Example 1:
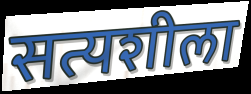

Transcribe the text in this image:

सत्यशीला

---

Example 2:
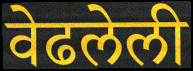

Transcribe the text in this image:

वेढलेली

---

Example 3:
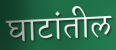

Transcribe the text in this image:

घाटांतील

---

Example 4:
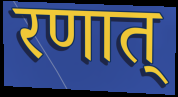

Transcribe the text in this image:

रणात्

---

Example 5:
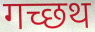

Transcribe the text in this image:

गच्छथ